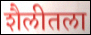
शैलीतला